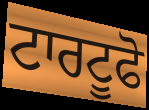
ਟਾਰਟੂਫੋ